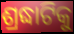
ଶ୍ରଦ୍ଧାଟିକୁ